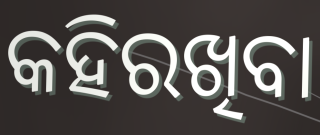
କହିରଖିବା